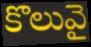
కొలువై